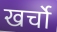
खर्चो